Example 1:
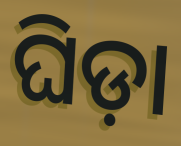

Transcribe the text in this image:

ଘିଡ଼ା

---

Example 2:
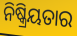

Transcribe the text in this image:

ନିଷ୍କ୍ରିୟତାର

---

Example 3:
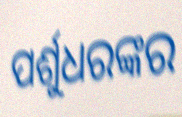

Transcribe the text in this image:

ପର୍ଶୁଧରଙ୍କର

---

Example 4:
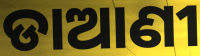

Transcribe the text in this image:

ଡାଆଣୀ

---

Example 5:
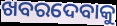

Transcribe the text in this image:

ଖବରଦେବାକୁ